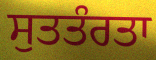
ਸੁਤਤੰਰਤਾ